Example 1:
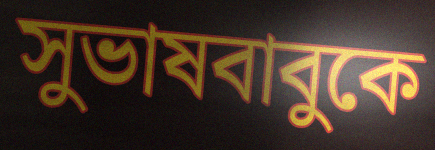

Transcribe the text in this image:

সুভাষবাবুকে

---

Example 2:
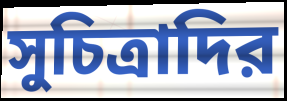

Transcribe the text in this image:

সুচিত্রাদির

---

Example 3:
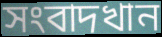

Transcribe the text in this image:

সংবাদখান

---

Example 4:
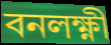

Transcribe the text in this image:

বনলক্ষ্ণী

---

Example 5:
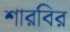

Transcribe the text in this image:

শারবির